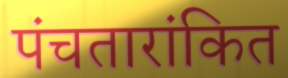
पंचतारांकित